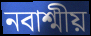
নবাশ্মীয়